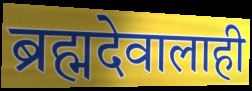
ब्रह्मदेवालाही